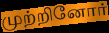
முற்றினோர்